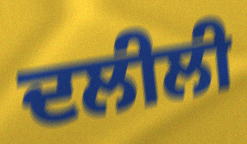
ਦਲੀਲੀ